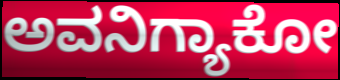
ಅವನಿಗ್ಯಾಕೋ